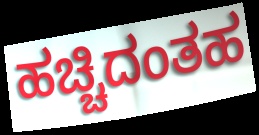
ಹಚ್ಚಿದಂತಹ